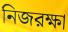
নিজরক্ষা